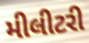
મીલીટરી